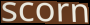
scorn